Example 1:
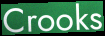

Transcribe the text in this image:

Crooks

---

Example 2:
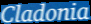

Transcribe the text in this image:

Cladonia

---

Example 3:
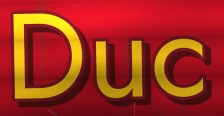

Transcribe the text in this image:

Duc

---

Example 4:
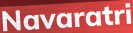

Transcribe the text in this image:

Navaratri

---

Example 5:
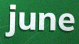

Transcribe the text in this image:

june